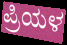
ಪ್ರಿಯಳ